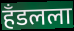
हँडलला